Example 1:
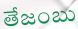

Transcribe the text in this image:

తేజంబు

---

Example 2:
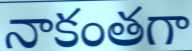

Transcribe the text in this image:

నాకంతగా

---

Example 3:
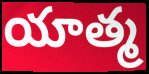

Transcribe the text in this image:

యాత్మ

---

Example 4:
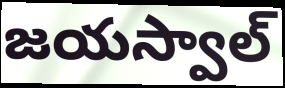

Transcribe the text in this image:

జయస్వాల్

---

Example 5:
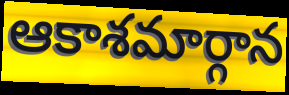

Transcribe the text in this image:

ఆకాశమార్గాన